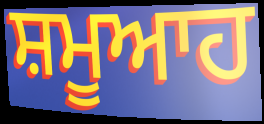
ਸ਼ਮੂਆਹ